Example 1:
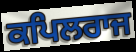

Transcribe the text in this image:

ਕਪਿਲਰਾਜ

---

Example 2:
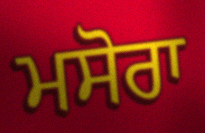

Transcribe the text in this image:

ਮਸੋਰਾ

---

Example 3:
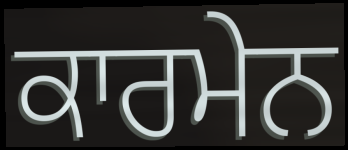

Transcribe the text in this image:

ਕਾਰਮੇਨ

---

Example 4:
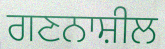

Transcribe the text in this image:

ਗਣਨਾਸ਼ੀਲ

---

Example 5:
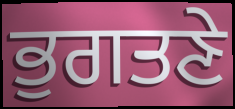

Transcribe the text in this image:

ਭੁਗਤਣੇ